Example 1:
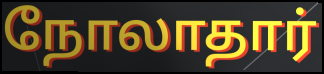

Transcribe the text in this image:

நோலாதார்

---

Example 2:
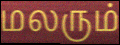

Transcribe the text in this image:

மலரும்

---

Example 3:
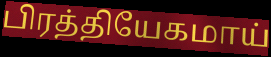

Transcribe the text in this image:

பிரத்தியேகமாய்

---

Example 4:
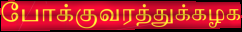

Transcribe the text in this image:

போக்குவரத்துக்கழக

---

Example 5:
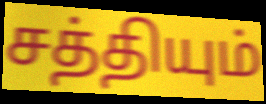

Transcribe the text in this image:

சத்தியும்